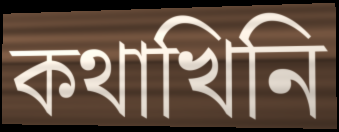
কথাখিনি